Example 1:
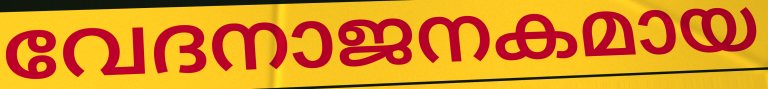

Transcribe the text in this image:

വേദനാജനകമായ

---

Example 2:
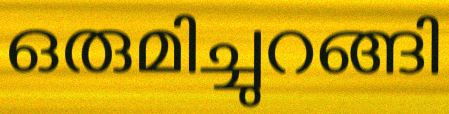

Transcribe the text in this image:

ഒരുമിച്ചുറങ്ങി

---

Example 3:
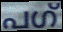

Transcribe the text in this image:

പഗ്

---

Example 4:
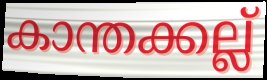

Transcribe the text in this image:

കാന്തക്കല്ല്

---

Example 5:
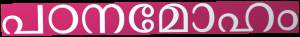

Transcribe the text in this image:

പഠനമോഹം